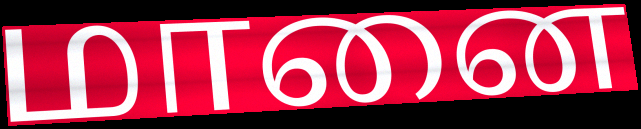
மானை